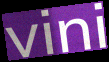
vini